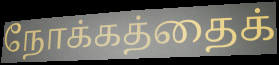
நோக்கத்தைக்